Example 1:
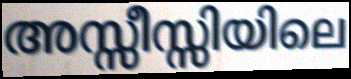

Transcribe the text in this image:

അസ്സീസ്സിയിലെ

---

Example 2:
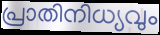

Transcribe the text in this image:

പ്രാതിനിധ്യവും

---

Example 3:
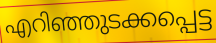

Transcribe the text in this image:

എറിഞ്ഞുടക്കപ്പെട്ട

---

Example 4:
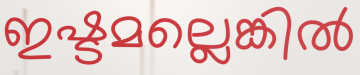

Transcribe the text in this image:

ഇഷ്ടമല്ലെങ്കിൽ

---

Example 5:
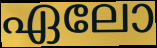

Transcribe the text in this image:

ഏലോ